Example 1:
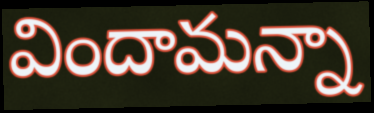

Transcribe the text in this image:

విందామన్నా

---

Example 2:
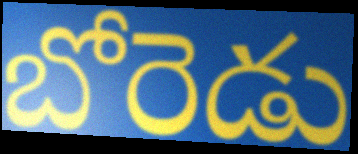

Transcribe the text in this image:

బోరెడు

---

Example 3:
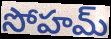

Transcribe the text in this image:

సోహమ్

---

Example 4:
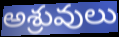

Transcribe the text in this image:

అశ్రువులు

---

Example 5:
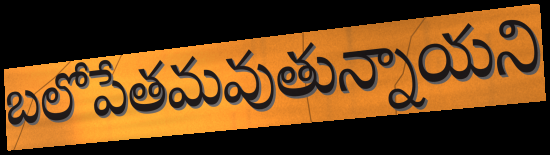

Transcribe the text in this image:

బలోపేతమవుతున్నాయని